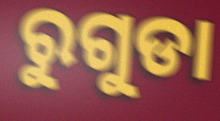
ରୁଗୁଡା